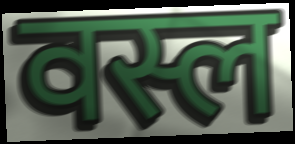
वस्ल